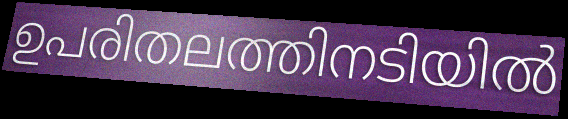
ഉപരിതലത്തിനടിയിൽ